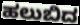
ಹಲುಬಿದ